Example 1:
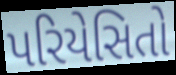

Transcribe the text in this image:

પરિયેસિતો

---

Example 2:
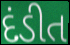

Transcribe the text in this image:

દંડીત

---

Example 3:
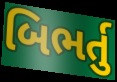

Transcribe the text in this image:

બિભર્તુ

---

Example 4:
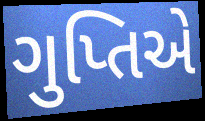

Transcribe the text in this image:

ગુપ્તિએ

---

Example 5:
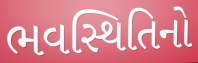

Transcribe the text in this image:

ભવસ્થિતિનો